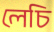
লেচি